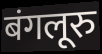
बंगलूरु